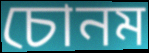
চোনম